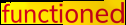
functioned